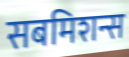
सबमिशन्स